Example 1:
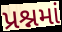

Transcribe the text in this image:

પ્રશ્નમાં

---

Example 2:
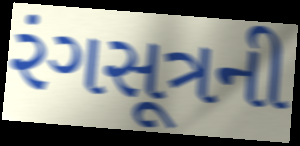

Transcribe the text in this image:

રંગસૂત્રની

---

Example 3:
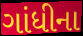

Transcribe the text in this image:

ગાંધીના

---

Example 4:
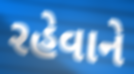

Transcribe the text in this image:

રહેવાને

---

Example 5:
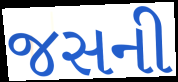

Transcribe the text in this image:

જસની